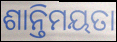
ଶାନ୍ତିମୟତା